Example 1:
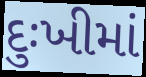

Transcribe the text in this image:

દુઃખીમાં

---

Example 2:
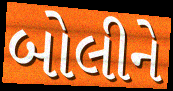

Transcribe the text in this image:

બોલીને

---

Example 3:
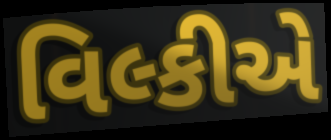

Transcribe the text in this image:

વિલ્કીએ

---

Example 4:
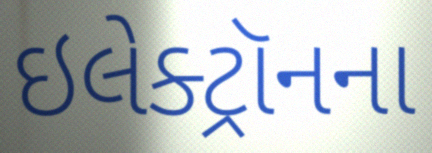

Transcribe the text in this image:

ઇલેક્ટ્રૉનના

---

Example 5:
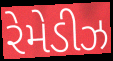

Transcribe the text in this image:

રેમેડીઝ